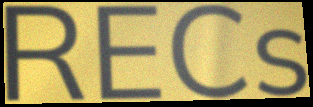
RECs